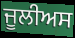
ਜੂਲੀਅਸ